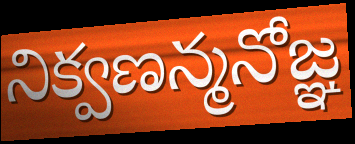
నిక్వణన్మనోజ్ఞ